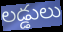
లడ్డులు